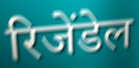
रिजेंडेल